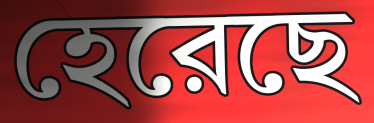
হেরেছে